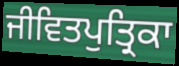
ਜੀਵਿਤਪੁਤ੍ਰਿਕਾ